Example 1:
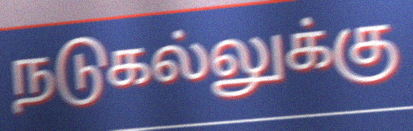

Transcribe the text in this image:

நடுகல்லுக்கு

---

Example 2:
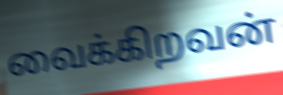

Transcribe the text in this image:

வைக்கிறவன்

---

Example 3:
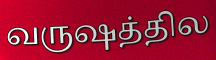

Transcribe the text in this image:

வருஷத்தில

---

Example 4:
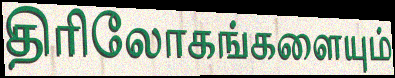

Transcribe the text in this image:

திரிலோகங்களையும்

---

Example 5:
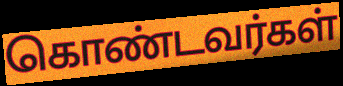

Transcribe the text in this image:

கொண்டவர்கள்